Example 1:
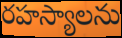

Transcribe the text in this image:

రహస్యాలను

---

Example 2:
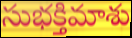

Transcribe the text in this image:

సుభక్తిమాశు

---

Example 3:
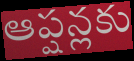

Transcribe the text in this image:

ఆప్షన్లకు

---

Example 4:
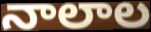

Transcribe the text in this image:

నాలాల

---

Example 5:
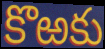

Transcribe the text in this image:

కొఱకు